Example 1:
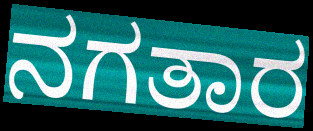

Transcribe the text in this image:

ನಗತಾರ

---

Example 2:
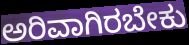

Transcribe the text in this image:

ಅರಿವಾಗಿರಬೇಕು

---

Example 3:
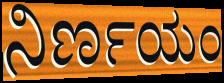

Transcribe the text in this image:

ನಿರ್ಣಯಂ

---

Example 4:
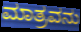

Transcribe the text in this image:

ಮಾತ್ರವನು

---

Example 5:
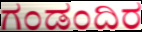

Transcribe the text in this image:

ಗಂಡಂದಿರ